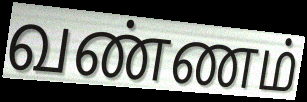
வண்ணம்